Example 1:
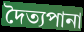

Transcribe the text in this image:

দৈত্যপানা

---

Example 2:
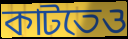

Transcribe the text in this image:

কাটতেও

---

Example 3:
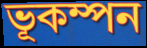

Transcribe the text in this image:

ভূকম্পন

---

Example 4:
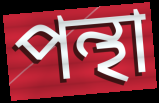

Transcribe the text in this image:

পন্থা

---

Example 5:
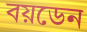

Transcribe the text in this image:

বয়ডেন